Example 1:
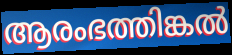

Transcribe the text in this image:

ആരംഭത്തിങ്കൽ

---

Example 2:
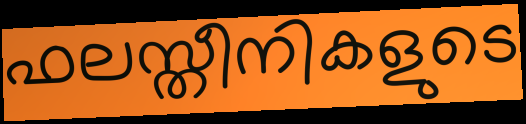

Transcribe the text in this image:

ഫലസ്തീനികളുടെ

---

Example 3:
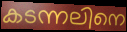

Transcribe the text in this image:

കടന്നലിനെ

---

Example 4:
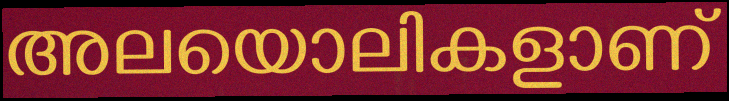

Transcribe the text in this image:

അലയൊലികളാണ്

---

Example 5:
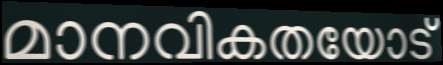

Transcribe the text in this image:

മാനവികതയോട്